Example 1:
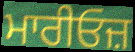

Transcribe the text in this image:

ਮਾਰੀਓਜ਼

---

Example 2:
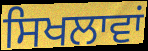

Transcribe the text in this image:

ਸਿਖਲਾਵਾਂ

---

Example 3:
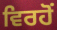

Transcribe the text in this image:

ਵਿਰਹੋਂ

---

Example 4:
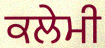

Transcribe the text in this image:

ਕਲੇਮੀ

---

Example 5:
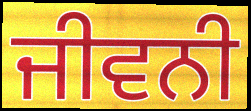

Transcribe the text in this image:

ਜੀਵਨੀ